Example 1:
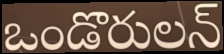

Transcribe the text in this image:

ఒండొరులన్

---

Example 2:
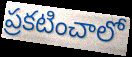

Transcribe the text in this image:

ప్రకటించాలో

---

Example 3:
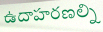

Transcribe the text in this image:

ఉదాహరణల్ని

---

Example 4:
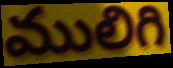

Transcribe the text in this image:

ములిగి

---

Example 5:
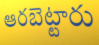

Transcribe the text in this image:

ఆరబెట్టారు